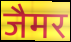
जैमर